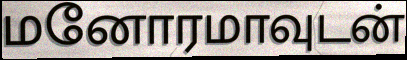
மனோரமாவுடன்